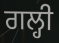
ਗਲ੍ਹੀ